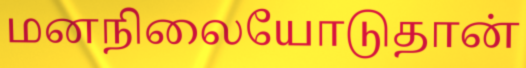
மனநிலையோடுதான்